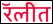
रॅलीत